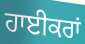
ਹਾਈਕਰਾਂ